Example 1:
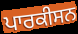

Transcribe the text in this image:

ਪਾਰਕੀਸਨ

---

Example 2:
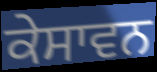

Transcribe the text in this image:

ਕੇਸਾਵਨ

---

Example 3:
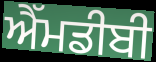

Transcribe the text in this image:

ਐੱਮਡੀਬੀ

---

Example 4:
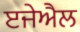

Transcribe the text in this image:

ੲਜੇਐਲ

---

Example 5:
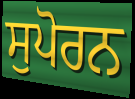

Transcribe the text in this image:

ਸੁਪੋਰਨ